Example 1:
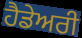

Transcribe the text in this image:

ਹੈਡੇਅਰੀ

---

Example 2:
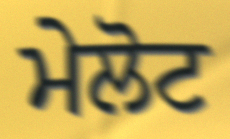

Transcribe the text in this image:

ਮੇਲੋਟ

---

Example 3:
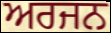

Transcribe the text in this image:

ਅਰਜਨ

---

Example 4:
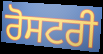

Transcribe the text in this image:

ਰੋਸਟਰੀ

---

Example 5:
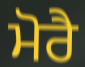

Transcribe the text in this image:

ਮੋਰੈ